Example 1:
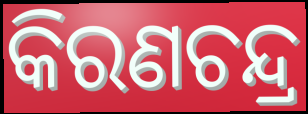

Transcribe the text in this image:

କିରଣଚନ୍ଦ୍ର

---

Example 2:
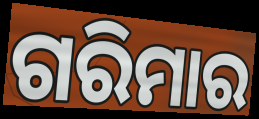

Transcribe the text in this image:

ଗରିମାର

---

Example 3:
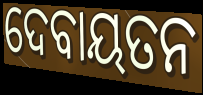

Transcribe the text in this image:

ଦେବାୟତନ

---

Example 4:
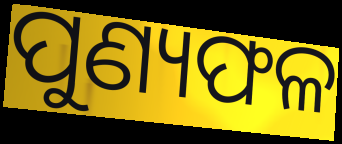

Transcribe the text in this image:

ପୁଣ୍ୟଫଳ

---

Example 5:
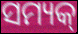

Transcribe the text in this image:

ସମ୍ୟକ୍